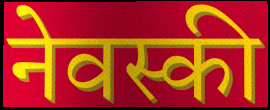
नेवस्की